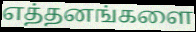
எத்தனங்களை